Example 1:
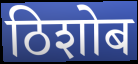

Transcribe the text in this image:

ठिशोब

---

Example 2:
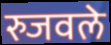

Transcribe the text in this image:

रुजवले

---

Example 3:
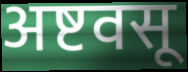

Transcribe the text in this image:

अष्टवसू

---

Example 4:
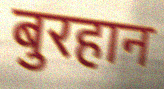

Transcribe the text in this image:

बुरहान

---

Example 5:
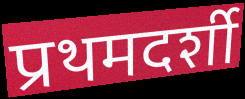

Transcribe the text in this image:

प्रथमदर्शी